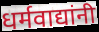
धर्मवाद्यांनी